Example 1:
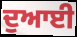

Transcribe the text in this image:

ਦੁਆਈ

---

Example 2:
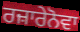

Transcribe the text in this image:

ਰਜ਼ਾਰੇਨੋਵਾ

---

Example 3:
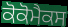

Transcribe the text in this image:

ਕੋਕੋਮੈਕਸ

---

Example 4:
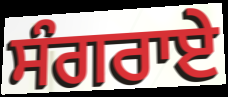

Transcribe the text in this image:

ਸੰਗਰਾਏ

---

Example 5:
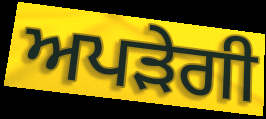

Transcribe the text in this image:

ਅਪੜੇਗੀ